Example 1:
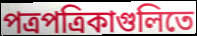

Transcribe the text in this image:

পত্রপত্রিকাগুলিতে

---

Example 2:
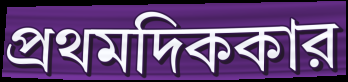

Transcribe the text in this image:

প্রথমদিককার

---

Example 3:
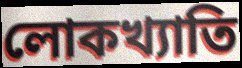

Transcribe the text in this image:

লোকখ্যাতি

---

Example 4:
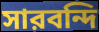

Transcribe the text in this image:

সারবন্দি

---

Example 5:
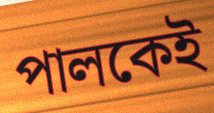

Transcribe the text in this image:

পালকেই